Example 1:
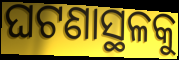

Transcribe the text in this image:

ଘଟଣାସ୍ଥଳକୁ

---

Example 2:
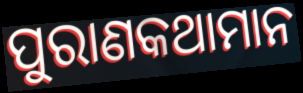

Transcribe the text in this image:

ପୁରାଣକଥାମାନ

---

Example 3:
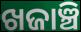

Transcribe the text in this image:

ଖଜାଞ୍ଚି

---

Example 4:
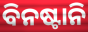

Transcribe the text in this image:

ବିନଷ୍ଟାନି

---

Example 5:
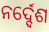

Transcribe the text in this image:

ନର୍ଦ୍ଦେଶ